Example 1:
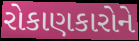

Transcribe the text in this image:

રોકાણકારોને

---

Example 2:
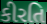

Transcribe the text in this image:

કીરતિ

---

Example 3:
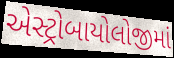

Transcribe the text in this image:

એસ્ટ્રોબાયોલોજીમાં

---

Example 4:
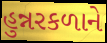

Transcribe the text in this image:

હુન્નરકળાને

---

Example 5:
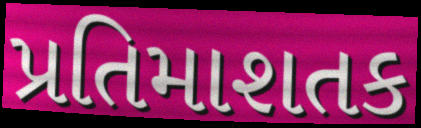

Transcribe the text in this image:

પ્રતિમાશતક